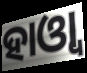
ହାଓ୍ୱା